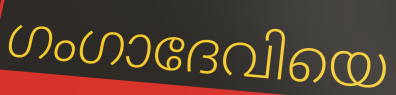
ഗംഗാദേവിയെ